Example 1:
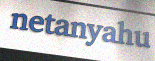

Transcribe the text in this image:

netanyahu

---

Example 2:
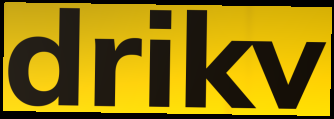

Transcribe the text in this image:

drikv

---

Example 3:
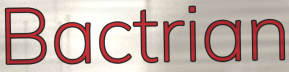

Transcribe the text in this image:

Bactrian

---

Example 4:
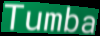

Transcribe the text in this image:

Tumba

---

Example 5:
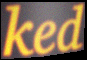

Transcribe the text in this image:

ked